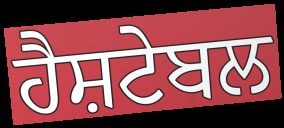
ਹੈਸ਼ਟੇਬਲ